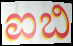
ಐಬಿ